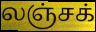
லஞ்சக்